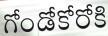
గోండోకోరోకి